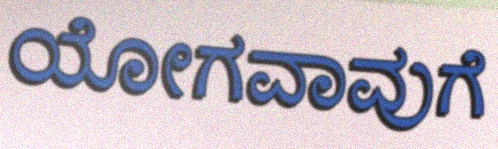
ಯೋಗವಾವುಗೆ